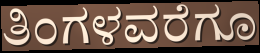
ತಿಂಗಳವರೆಗೂ